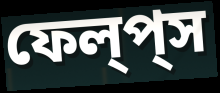
ফেল্‌প্‌স